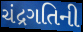
ચંદ્રગતિની